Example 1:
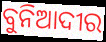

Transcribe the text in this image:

ବୁନିଆଦୀର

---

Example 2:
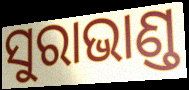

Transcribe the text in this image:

ସୁରାଭାଣ୍ଡ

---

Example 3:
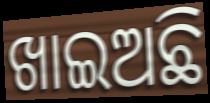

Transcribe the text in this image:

ଖାଇଅଛି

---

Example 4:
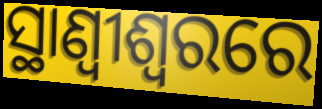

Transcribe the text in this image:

ସ୍ଥାଣ୍ୱୀଶ୍ୱରରେ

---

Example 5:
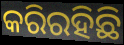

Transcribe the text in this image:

କରିରହିଛି